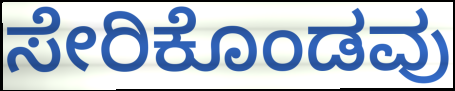
ಸೇರಿಕೊಂಡವು